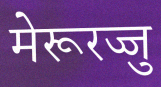
मेरूरज्जु